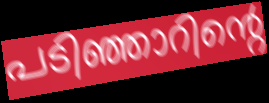
പടിഞ്ഞാറിന്റെ